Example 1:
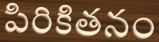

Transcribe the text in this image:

పిరికితనం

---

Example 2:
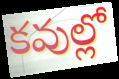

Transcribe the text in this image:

కవుల్లో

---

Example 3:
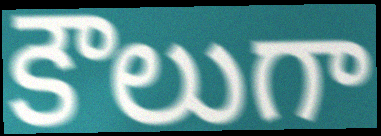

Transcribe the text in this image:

కౌలుగా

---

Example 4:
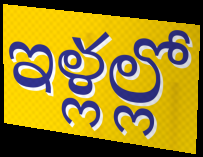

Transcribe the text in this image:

ఇళ్లల్లో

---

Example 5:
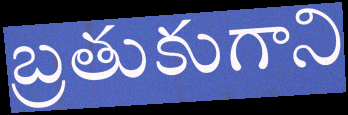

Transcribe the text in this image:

బ్రతుకుగాని